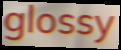
glossy